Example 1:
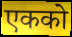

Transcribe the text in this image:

एकको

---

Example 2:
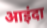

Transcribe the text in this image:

आइंदा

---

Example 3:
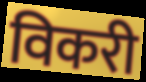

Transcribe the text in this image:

विकरी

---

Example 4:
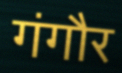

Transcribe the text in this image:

गंगौर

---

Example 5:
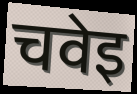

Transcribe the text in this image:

चवेइ